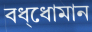
বধ্ধোমান